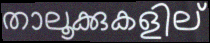
താലൂക്കുകളില്